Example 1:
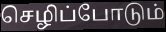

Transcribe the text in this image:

செழிப்போடும்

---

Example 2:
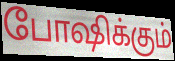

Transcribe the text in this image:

போஷிக்கும்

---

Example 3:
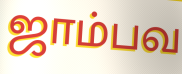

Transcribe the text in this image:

ஜாம்பவ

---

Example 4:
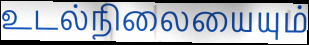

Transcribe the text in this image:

உடல்நிலையையும்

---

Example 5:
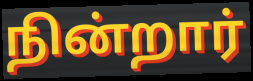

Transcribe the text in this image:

நின்றார்